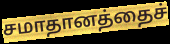
சமாதானத்தைச்